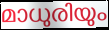
മാധുരിയും